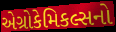
એગ્રોકેમિકલ્સનો